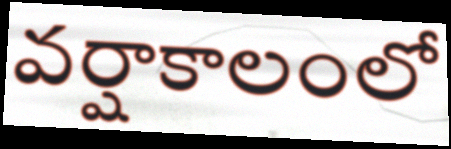
వర్షాకాలంలో